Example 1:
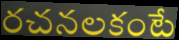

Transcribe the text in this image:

రచనలకంటే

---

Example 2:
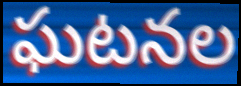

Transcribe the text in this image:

ఘటనల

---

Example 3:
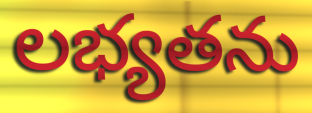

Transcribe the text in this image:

లభ్యతను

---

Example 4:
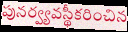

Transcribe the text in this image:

పునర్వ్యవస్థీకరించిన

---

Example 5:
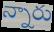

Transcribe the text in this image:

న్నారు